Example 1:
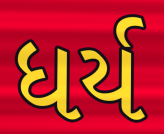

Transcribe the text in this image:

ધર્ય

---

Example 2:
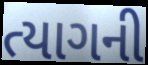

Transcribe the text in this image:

ત્યાગની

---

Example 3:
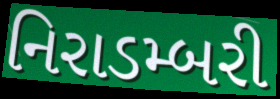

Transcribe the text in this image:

નિરાડમ્બરી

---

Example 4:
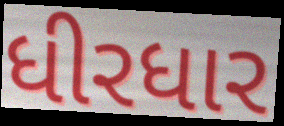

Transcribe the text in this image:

ધીરધાર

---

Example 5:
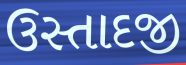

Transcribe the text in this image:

ઉસ્તાદજી